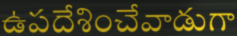
ఉపదేశించేవాడుగా